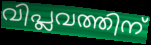
വിപ്ലവത്തിന്